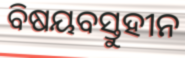
ବିଷୟବସ୍ତୁହୀନ